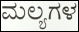
ಮಲ್ಯಗಳ